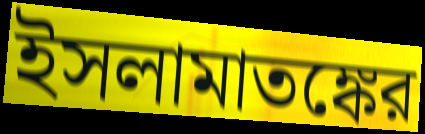
ইসলামাতঙ্কের